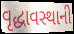
વૃદ્ધાવસ્થાની